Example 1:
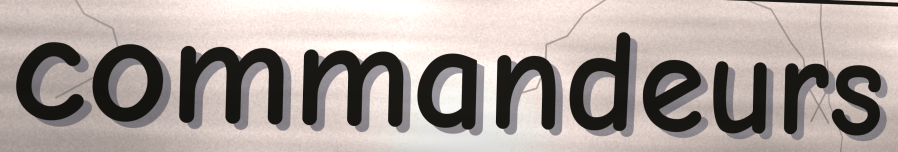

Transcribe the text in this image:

commandeurs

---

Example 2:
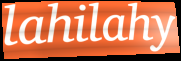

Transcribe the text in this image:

lahilahy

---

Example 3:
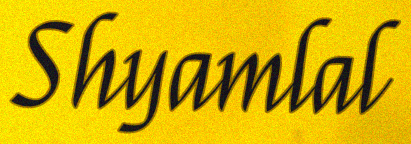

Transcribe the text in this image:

Shyamlal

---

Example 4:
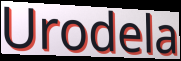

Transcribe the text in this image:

Urodela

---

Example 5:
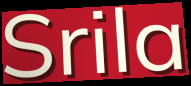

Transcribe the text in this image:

Srila